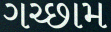
ગચ્છામ